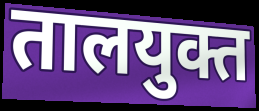
तालयुक्त